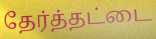
தேர்த்தட்டை